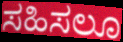
ಸಹಿಸಲೂ